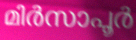
മിർസാപൂർ